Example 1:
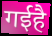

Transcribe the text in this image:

गईहै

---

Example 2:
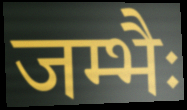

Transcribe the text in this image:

जम्भैः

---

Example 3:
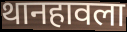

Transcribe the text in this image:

थानहावला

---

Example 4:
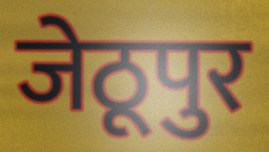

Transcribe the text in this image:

जेठूपुर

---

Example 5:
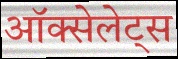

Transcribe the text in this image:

ऑक्सेलेट्स